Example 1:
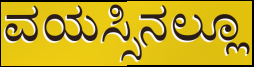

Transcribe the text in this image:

ವಯಸ್ಸಿನಲ್ಲೂ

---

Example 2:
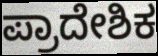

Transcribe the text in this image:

ಪ್ರಾದೇಶಿಕ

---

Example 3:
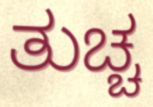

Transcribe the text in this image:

ತುಚ್ಚ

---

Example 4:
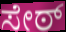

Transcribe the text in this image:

ಸೇಠ್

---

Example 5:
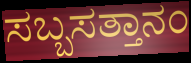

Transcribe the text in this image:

ಸಬ್ಬಸತ್ತಾನಂ